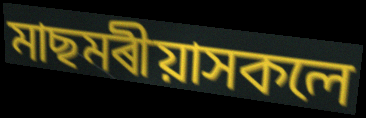
মাছমৰীয়াসকলে